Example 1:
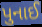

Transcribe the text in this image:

પુનાઈ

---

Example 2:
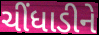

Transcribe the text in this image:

ચીંધાડીને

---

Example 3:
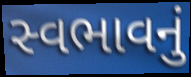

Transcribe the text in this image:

સ્વભાવનું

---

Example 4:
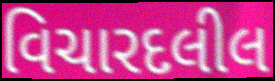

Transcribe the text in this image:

વિચારદલીલ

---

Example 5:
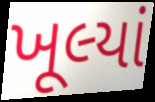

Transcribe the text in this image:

ખૂલ્યાં